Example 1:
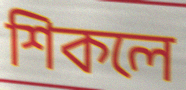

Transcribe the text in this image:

শিকলে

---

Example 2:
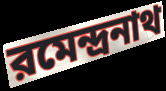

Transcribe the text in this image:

রমেন্দ্রনাথ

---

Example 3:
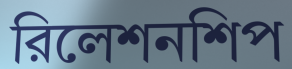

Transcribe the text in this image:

রিলেশনশিপ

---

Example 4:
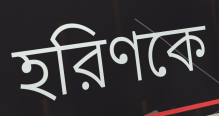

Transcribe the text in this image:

হরিণকে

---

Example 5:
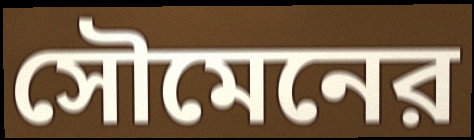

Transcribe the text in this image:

সৌমেনের